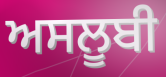
ਅਸਲੂਬੀ